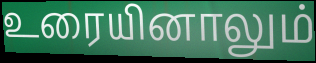
உரையினாலும்